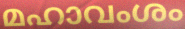
മഹാവംശം